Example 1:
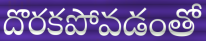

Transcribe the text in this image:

దొరకపోవడంతో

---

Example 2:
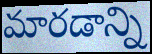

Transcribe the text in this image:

మారడాన్ని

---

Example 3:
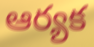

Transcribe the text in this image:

ఆర్యక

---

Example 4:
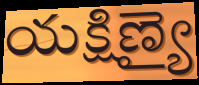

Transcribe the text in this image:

యక్షిణ్యై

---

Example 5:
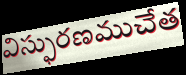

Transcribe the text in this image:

విస్ఫురణముచేత